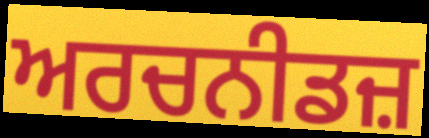
ਅਰਚਨੀਡਜ਼